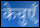
केचुएँ